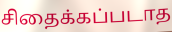
சிதைக்கப்படாத